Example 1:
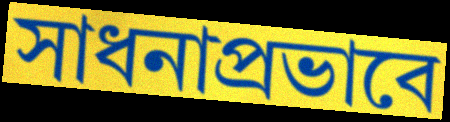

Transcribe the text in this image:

সাধনাপ্রভাবে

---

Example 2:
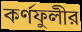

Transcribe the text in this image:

কর্ণফুলীর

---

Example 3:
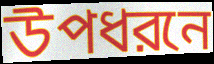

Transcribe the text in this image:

উপধরনে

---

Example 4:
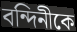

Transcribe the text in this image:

বন্দিনীকে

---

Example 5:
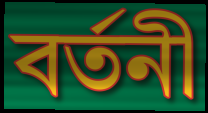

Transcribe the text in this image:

বর্তনী